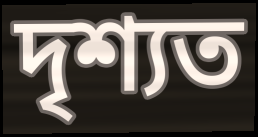
দৃশ্যত